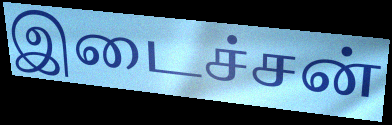
இடைச்சன்